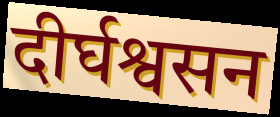
दीर्घश्वसन